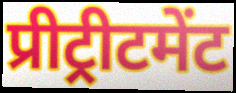
प्रीट्रीटमेंट